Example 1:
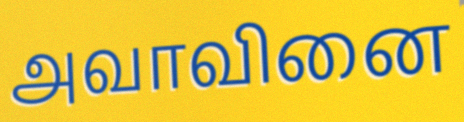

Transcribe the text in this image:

அவாவினை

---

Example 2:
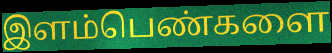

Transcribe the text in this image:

இளம்பெண்களை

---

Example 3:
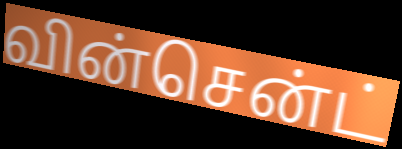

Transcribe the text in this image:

வின்சென்ட்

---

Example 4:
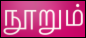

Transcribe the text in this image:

நூறும்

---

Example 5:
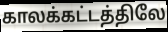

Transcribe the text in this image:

காலக்கட்டத்திலே